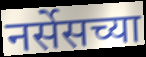
नर्सेसच्या